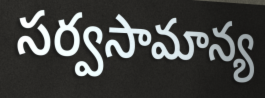
సర్వసామాన్య